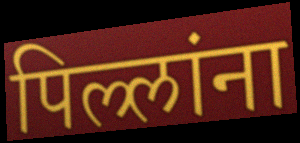
पिल्लांना